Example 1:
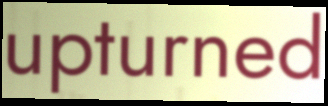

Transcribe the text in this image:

upturned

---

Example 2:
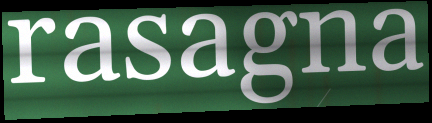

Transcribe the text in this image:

rasagna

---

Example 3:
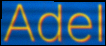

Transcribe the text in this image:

Adel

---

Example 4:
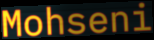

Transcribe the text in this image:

Mohseni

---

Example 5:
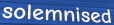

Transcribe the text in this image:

solemnised